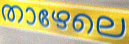
താഴേലെ